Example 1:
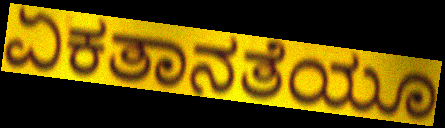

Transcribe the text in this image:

ಏಕತಾನತೆಯೂ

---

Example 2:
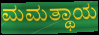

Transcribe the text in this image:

ಮಮತ್ಥಾಯ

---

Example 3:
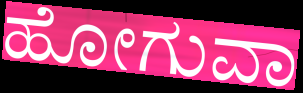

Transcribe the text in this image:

ಹೋಗುವಾ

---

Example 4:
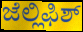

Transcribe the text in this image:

ಜೆಲ್ಲಿಫಿಶ್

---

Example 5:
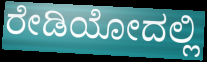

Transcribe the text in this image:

ರೇಡಿಯೋದಲ್ಲಿ